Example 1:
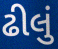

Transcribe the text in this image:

ઢીલું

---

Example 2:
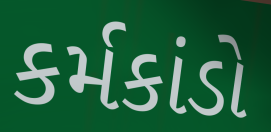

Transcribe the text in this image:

કર્મકાંડો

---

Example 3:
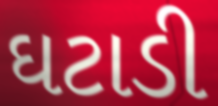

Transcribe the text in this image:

ઘટાડી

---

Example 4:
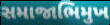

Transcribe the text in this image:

સમાજાભિમુખ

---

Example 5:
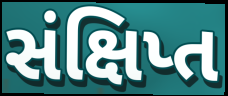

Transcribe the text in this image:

સંક્ષિપ્ત